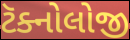
ટૅક્નોલોજી